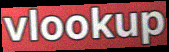
vlookup